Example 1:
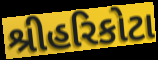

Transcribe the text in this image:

શ્રીહરિકોટા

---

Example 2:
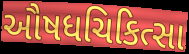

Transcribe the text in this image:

ઔષધચિકિત્સા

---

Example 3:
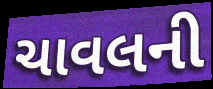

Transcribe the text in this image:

ચાવલની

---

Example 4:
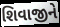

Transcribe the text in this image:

શિવાજીને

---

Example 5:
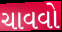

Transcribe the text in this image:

ચાવવો